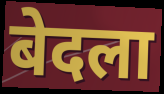
बेदला